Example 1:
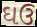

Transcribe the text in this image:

ઘઉ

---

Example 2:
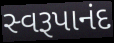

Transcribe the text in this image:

સ્વરૂપાનંદ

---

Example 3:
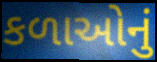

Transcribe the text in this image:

કળાઓનું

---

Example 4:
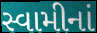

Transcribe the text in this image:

સ્વામીનાં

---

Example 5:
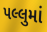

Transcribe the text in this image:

પલ્લુમાં